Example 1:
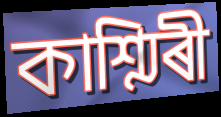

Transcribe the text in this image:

কাশ্মিৰী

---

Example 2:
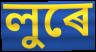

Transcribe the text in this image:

লুৰে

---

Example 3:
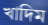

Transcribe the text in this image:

খাদিম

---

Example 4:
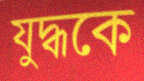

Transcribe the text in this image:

যুদ্ধকে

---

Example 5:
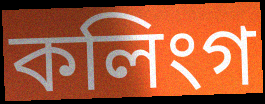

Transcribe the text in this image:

কলিংগ